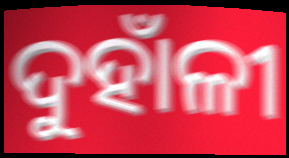
ଦୁହାଁଳୀ